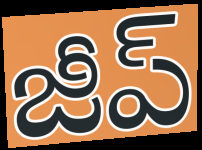
జీప్